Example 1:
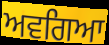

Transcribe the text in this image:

ਅਵਗਿਆ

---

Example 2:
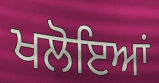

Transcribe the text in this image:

ਖਲੋਇਆਂ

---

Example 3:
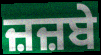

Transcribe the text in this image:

ਜ਼ਜ਼ਬੇ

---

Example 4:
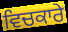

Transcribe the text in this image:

ਵਿਚਕਾਰੇ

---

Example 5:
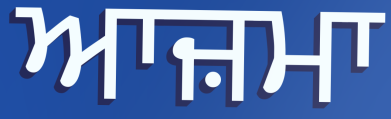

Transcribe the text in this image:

ਆਜ਼ਮਾ